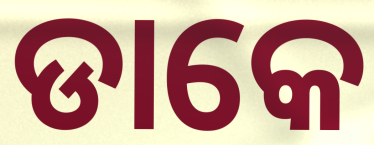
ଡାକେ